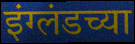
इंग्लंडच्या